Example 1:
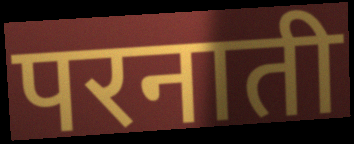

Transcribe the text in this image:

परनाती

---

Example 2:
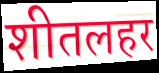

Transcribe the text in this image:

शीतलहर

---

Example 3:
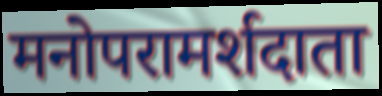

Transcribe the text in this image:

मनोपरामर्शदाता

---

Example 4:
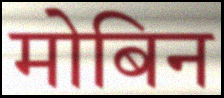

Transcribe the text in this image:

मोबिन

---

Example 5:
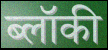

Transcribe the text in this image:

ब्लॉकी